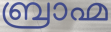
ബ്രാഹ്മ